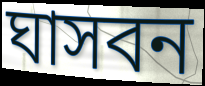
ঘাসবন